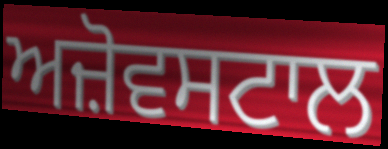
ਅਜ਼ੋਵਸਟਾਲ